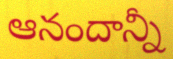
ఆనందాన్నీ